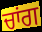
ਚਾਂਗ